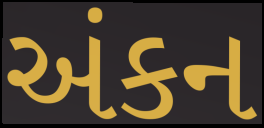
અંકન